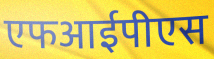
एफआईपीएस